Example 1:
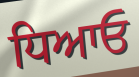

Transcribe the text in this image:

ਧਿਆਓ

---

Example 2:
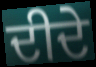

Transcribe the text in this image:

ਦੀਦੇ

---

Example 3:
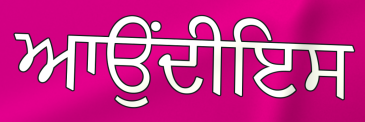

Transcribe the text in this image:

ਆਉਂਦੀਇਸ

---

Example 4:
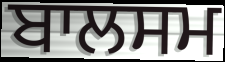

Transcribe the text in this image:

ਬਾਲਸਮ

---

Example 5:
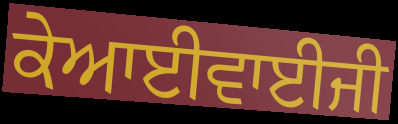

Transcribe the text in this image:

ਕੇਆਈਵਾਈਜੀ